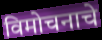
विमोचनाचे